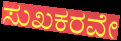
ಸುಖಕರವೇ